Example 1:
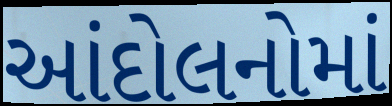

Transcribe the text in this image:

આંદોલનોમાં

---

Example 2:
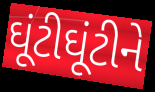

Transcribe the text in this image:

ઘૂંટીઘૂંટીને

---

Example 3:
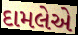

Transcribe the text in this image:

દામલેએ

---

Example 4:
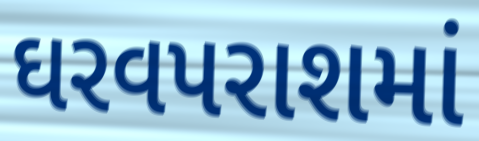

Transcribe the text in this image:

ઘરવપરાશમાં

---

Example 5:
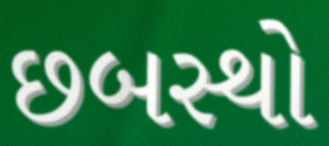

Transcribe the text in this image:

છબસ્થો